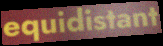
equidistant